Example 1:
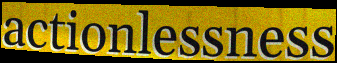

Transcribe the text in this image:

actionlessness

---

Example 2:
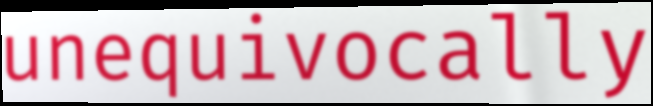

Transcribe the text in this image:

unequivocally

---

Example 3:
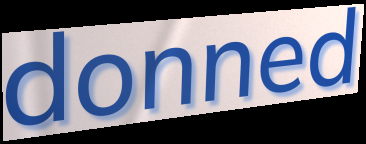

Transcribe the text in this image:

donned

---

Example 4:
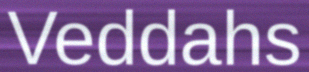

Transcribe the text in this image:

Veddahs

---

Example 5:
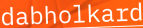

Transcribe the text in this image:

dabholkard